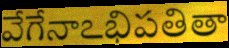
వేగేనాఽభిపతితా